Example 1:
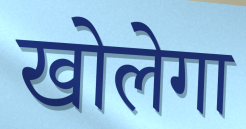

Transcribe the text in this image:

खोलेगा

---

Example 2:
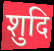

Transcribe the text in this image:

शुदि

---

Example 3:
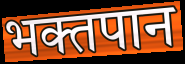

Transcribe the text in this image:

भक्तपान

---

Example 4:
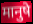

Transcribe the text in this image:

मानुषे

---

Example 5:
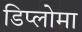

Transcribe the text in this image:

डिप्‍लोमा